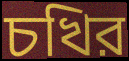
চখির